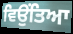
ਵਿਉਂਤਿਆ